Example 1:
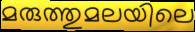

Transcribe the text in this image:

മരുത്തുമലയിലെ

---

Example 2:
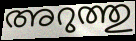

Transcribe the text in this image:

അറുത്തു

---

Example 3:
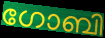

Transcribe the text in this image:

ഗോബി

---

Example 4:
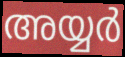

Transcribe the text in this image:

അയ്യർ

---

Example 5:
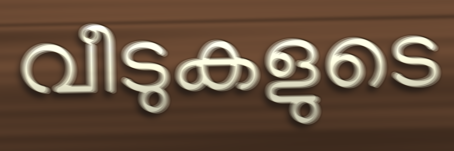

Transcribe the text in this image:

വീടുകളുടെ